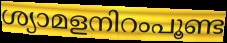
ശ്യാമളനിറംപൂണ്ട